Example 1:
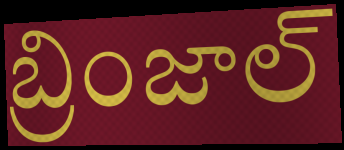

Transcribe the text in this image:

బ్రింజాల్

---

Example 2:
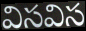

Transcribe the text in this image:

విసవిస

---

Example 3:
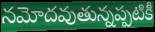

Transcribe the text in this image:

నమోదవుతున్నప్పటికీ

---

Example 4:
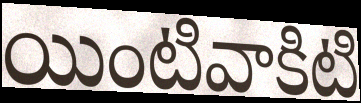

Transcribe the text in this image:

యింటివాకిటి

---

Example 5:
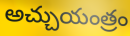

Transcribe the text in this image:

అచ్చుయంత్రం